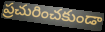
ప్రచురించకుండా